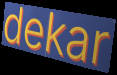
dekar